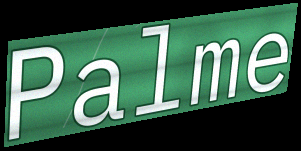
Palme